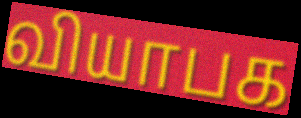
வியாபக